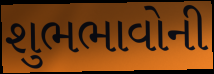
શુભભાવોની